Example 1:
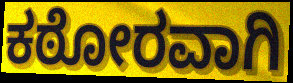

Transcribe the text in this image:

ಕಠೋರವಾಗಿ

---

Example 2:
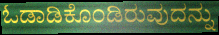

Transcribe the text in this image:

ಓಡಾಡಿಕೊಂಡಿರುವುದನ್ನು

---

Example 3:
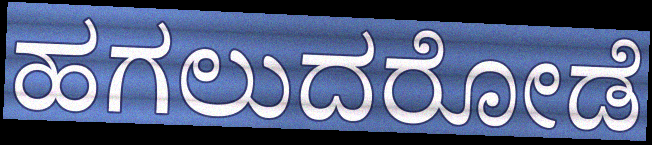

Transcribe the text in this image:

ಹಗಲುದರೋಡೆ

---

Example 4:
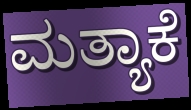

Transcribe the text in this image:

ಮತ್ಯಾಕೆ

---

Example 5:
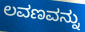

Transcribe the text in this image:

ಲವಣವನ್ನು